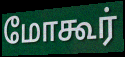
மோகூர்